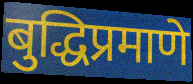
बुद्धिप्रमाणे